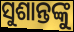
ସୁଶାନ୍ତଙ୍କୁ